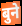
बुने